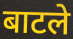
बाटले